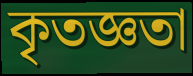
কৃতজ্ঞতা